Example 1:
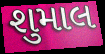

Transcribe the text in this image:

શુમાલ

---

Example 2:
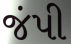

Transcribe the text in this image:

જંપી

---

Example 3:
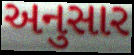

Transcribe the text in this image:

અનુસાર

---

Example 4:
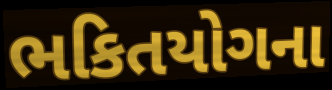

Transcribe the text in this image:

ભકિતયોગના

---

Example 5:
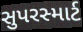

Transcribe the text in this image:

સુપરસ્માર્ટ